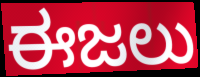
ಈಜಲು